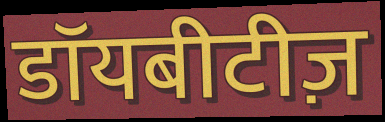
डॉयबीटीज़